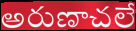
అరుణాచలే